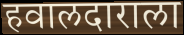
हवालदाराला